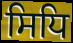
ਸਿਧਿ